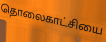
தொலைகாட்சியை